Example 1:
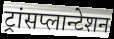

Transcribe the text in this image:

ट्रांसप्लान्टेशन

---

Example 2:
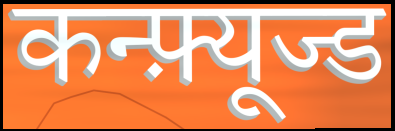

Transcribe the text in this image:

कन्फ़्यूज्ड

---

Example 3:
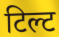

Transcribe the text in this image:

टिल्ट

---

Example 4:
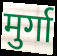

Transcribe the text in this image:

मुर्गा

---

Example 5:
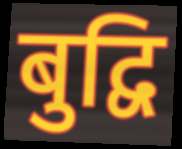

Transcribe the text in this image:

बुद्वि